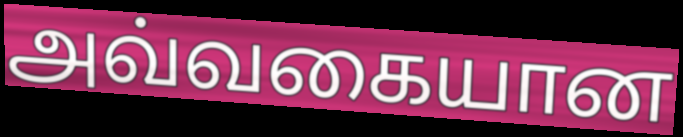
அவ்வகையான